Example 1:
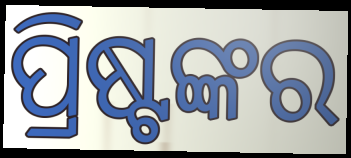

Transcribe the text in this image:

ପ୍ରିଷ୍ଟଙ୍କର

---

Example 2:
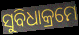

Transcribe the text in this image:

ସୁବିଧାକ୍ରମେ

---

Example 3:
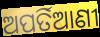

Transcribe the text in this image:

ଅପର୍ତିଆଣୀ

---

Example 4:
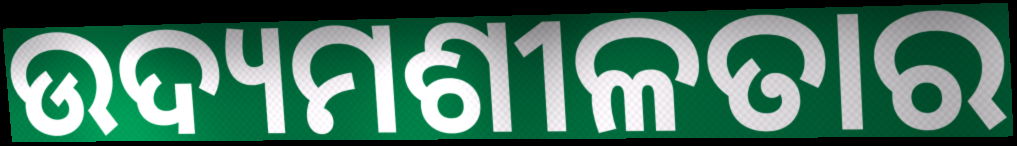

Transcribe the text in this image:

ଉଦ୍ୟମଶୀଳତାର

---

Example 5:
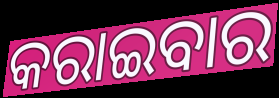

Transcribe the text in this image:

କରାଇବାର